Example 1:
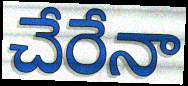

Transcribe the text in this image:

చేరేనా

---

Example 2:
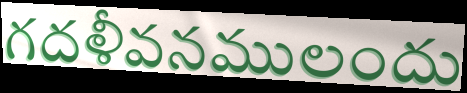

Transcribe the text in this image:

గదళీవనములందు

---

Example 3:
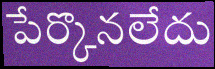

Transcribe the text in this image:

పేర్కొనలేదు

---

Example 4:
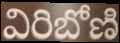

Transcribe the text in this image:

విరిబోణి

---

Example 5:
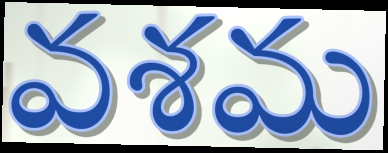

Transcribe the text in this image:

వశమ